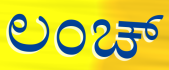
ಲಂಚ್